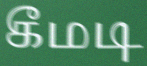
கீமடி